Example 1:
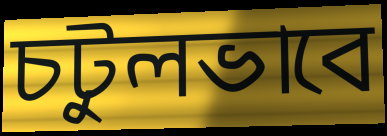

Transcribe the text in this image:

চটুলভাবে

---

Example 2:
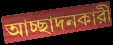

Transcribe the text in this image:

আচ্ছাদনকারী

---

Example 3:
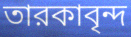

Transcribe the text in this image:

তারকাবৃন্দ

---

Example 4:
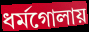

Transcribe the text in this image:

ধর্মগোলায়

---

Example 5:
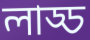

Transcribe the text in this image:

লাড্ড